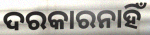
ଦରକାରନାହିଁ